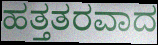
ಹತ್ತತರವಾದ